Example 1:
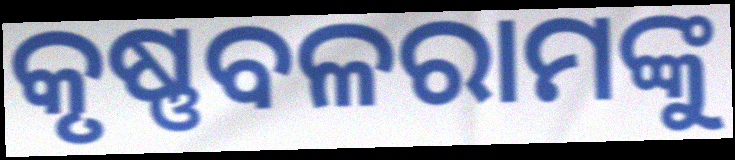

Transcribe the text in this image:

କୃଷ୍ଣବଳରାମଙ୍କୁ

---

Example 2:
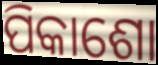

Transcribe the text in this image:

ପିକାଶୋ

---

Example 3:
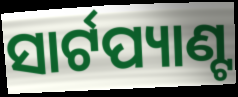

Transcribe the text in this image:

ସାର୍ଟପ୍ୟାଣ୍ଟ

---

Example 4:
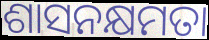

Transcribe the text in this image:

ଶାସନକ୍ଷମତା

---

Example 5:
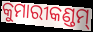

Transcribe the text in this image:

କୁମାରୀକଣ୍ଡମ୍